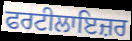
ਫਰਟੀਲਾਇਜ਼ਰ